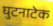
घुटनाटेक